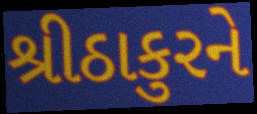
શ્રીઠાકુરને